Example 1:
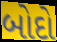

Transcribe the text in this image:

બોદો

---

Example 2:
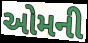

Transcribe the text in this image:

ઓમની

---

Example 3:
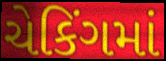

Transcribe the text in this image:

ચેકિંગમાં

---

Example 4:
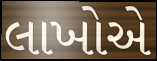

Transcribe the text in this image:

લાખોએ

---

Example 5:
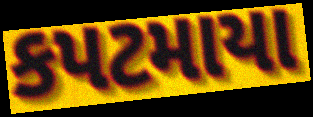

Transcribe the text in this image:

કપટમાયા